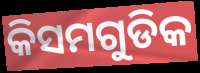
କିସମଗୁଡିକ